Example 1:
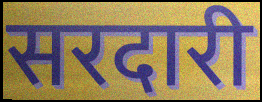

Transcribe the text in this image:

सरदारी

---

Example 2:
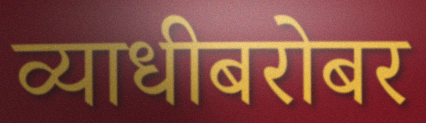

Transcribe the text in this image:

व्याधीबरोबर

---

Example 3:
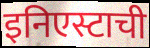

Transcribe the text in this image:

इनिएस्टाची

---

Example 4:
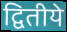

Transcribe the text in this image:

द्वितीये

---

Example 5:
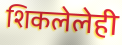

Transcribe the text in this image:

शिकलेलेही